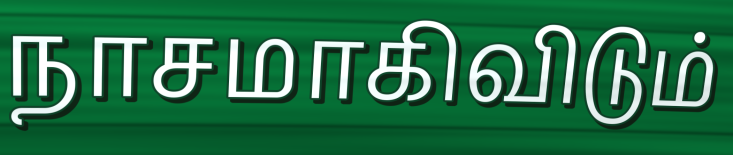
நாசமாகிவிடும்